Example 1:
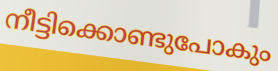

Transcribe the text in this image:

നീട്ടിക്കൊണ്ടുപോകും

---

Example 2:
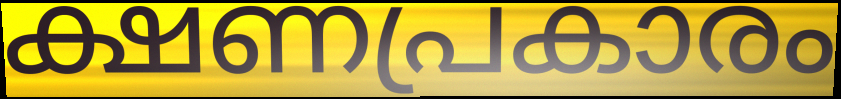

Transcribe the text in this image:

ക്ഷണപ്രകാരം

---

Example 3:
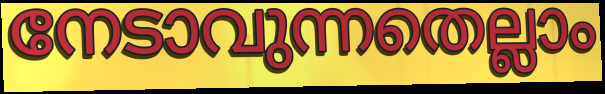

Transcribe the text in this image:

നേടാവുന്നതെല്ലാം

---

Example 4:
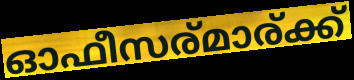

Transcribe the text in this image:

ഓഫീസര്മാര്ക്ക്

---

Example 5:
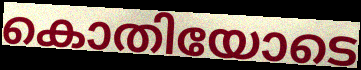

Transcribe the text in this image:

കൊതിയോടെ